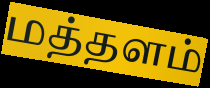
மத்தளம்